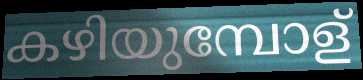
കഴിയുമ്പോള്